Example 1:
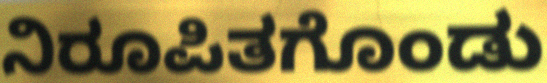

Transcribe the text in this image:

ನಿರೂಪಿತಗೊಂಡು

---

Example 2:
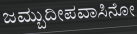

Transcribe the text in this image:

ಜಮ್ಬುದೀಪವಾಸಿನೋ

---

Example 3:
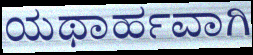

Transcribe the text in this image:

ಯಥಾರ್ಹವಾಗಿ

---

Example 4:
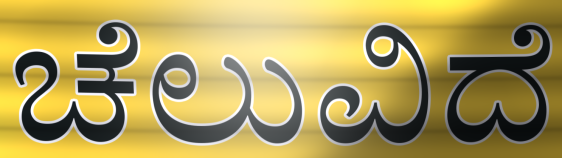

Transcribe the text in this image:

ಚೆಲುವಿದೆ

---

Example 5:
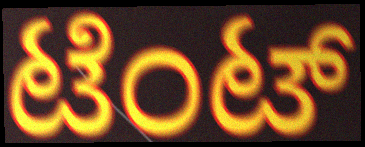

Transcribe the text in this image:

ಟೆಂಟ್